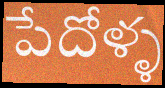
పేదోళ్ళ